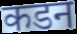
कडन